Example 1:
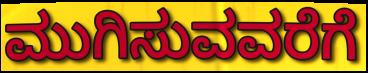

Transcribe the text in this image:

ಮುಗಿಸುವವರೆಗೆ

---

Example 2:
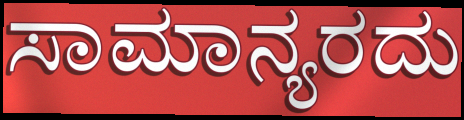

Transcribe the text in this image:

ಸಾಮಾನ್ಯರದು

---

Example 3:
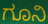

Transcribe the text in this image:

ಗೂನಿ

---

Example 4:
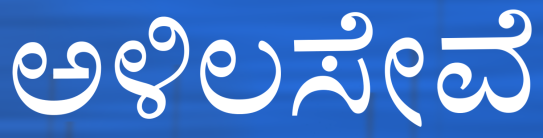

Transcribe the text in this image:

ಅಳಿಲಸೇವೆ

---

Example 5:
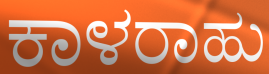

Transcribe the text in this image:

ಕಾಳರಾಹು